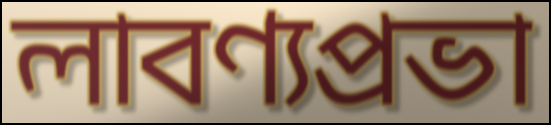
লাবণ্যপ্রভা